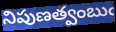
నిపుణత్వంబుఁ